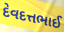
દેવદત્તભાઈ